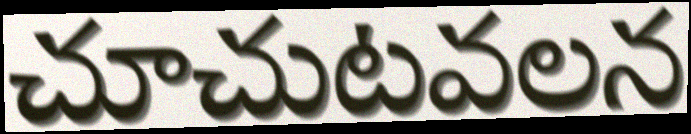
చూచుటవలన